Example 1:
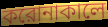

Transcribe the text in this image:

করোনাকালে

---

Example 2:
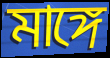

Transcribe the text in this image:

মাঙ্গে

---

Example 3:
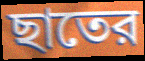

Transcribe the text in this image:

ছাতের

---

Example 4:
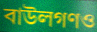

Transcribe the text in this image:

বাউলগণও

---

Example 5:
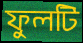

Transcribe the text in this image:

ফুলটি